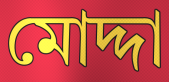
মোদ্দা